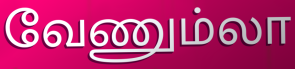
வேணும்லா